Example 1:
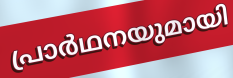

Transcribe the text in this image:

പ്രാർഥനയുമായി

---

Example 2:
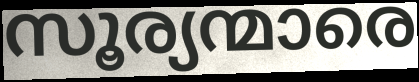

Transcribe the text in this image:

സൂര്യന്മാരെ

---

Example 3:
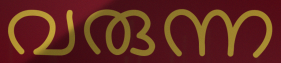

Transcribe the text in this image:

വരുന്ന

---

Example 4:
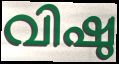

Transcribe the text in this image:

വിഷു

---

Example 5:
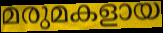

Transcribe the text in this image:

മരുമകളായ